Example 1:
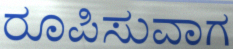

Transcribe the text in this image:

ರೂಪಿಸುವಾಗ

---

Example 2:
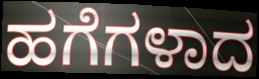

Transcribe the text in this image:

ಹಗೆಗಳಾದ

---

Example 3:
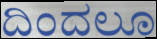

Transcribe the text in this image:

ದಿಂದಲೂ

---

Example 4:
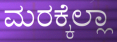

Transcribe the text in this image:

ಮರಕ್ಕೆಲ್ಲಾ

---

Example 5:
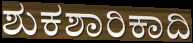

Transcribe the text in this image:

ಶುಕಶಾರಿಕಾದಿ